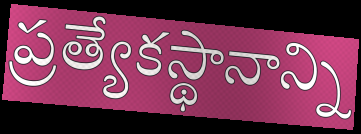
ప్రత్యేకస్థానాన్ని